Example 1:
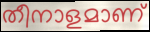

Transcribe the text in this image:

തീനാളമാണ്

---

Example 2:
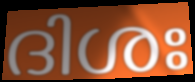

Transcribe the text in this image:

ദിശഃ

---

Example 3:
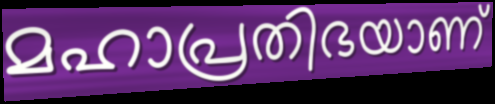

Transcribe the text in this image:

മഹാപ്രതിഭയാണ്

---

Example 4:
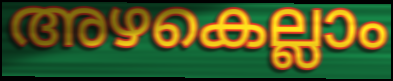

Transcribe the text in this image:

അഴകെല്ലാം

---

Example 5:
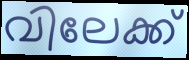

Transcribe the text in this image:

വിലേക്ക്